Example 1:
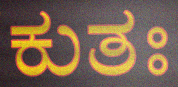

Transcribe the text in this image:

ಕುತಃ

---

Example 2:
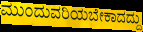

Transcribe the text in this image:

ಮುಂದುವರಿಯಬೇಕಾದದ್ದು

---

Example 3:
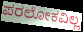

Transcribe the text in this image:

ಪರಲೋಕವಿಲ್ಲ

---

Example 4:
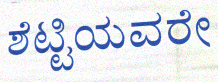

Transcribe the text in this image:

ಶೆಟ್ಟಿಯವರೇ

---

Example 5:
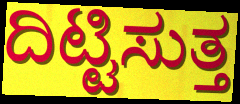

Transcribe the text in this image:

ದಿಟ್ಟಿಸುತ್ತ